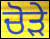
ਚੋੜੇ